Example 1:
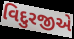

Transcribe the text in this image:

વિદુરજીએ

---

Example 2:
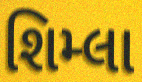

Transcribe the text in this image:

શિમ્લા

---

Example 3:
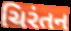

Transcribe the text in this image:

ચિરંતન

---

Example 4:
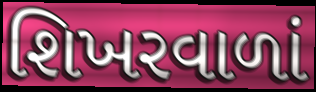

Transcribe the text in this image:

શિખરવાળાં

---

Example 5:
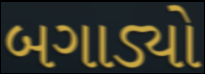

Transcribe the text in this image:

બગાડ્યો